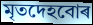
মৃতদেহবোৰ